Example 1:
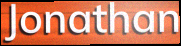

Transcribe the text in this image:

Jonathan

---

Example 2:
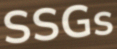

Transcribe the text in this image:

SSGs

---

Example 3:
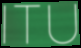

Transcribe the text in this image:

ITU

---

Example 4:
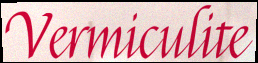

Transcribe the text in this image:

Vermiculite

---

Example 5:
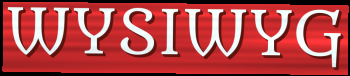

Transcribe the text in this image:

WYSIWYG